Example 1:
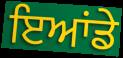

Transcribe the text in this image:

ਇਆਂਡੇ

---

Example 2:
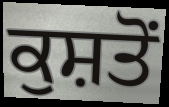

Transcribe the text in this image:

ਕੁਸ਼ਤੋਂ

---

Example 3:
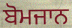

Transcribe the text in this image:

ਬੋਮਜਾਨ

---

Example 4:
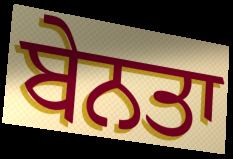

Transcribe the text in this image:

ਬੇਨਤਾ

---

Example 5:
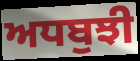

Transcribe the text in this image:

ਅਧਬੁਝੀ